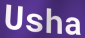
Usha